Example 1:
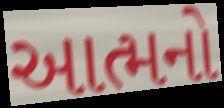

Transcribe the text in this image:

આત્મનો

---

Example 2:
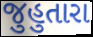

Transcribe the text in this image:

જુહુતારા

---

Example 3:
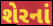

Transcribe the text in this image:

શેરનાં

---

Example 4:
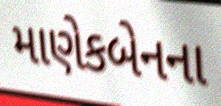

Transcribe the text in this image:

માણેકબેનના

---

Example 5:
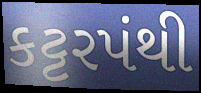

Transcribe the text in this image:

કટ્ટરપંથી